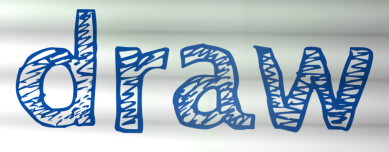
draw